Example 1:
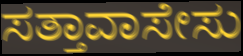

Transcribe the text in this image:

ಸತ್ತಾವಾಸೇಸು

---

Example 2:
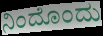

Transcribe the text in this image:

ನಿಂದೊಂದು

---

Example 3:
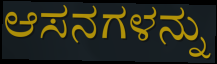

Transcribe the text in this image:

ಆಸನಗಳನ್ನು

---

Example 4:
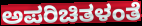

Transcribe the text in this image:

ಅಪರಿಚಿತಳಂತೆ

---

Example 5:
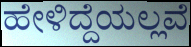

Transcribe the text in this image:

ಹೇಳಿದ್ದೆಯಲ್ಲವೆ